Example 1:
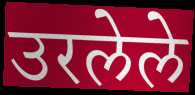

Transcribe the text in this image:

उरलेले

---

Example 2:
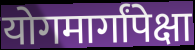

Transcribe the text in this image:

योगमार्गांपेक्षा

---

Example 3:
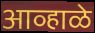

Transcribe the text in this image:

आव्हाळे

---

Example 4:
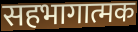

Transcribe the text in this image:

सहभागात्मक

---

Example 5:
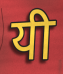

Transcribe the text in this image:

यी